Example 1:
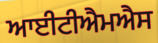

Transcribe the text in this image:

ਆਈਟੀਐਮਐਸ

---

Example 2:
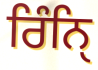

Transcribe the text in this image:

ਰਿੰਨਿੑ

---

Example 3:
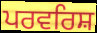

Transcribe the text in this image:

ਪਰਵਰਿਸ਼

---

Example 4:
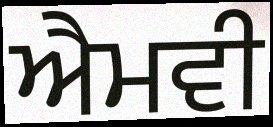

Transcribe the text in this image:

ਐਮਵੀ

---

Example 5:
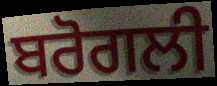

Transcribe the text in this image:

ਬਰੋਗਲੀ